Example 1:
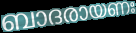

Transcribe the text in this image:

ബാദരായണഃ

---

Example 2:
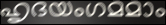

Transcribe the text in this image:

ഹൃദയംഗമമാം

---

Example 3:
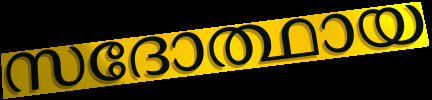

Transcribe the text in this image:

സദോത്ഥായ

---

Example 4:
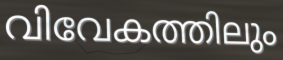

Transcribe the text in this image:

വിവേകത്തിലും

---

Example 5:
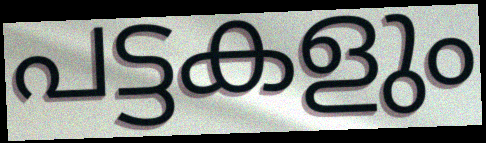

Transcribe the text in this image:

പട്ടകളും